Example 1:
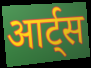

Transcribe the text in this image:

आर्ट्स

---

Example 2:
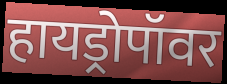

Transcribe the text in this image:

हायड्रोपॉवर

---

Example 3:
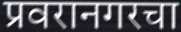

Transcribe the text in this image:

प्रवरानगरचा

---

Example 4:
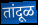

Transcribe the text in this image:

तांदूळ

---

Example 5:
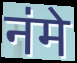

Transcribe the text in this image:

न॑मे